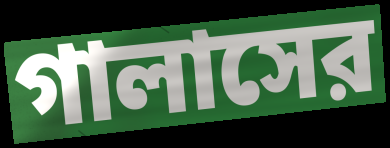
গালাসের